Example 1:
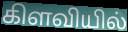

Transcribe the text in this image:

கிளவியில்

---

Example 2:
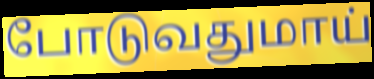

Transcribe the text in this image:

போடுவதுமாய்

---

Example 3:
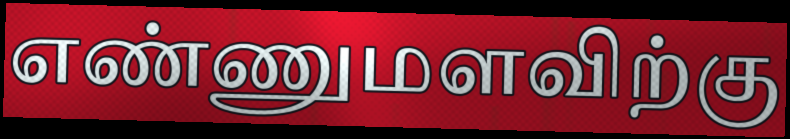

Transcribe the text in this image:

எண்ணுமளவிற்கு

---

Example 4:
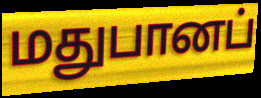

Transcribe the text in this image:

மதுபானப்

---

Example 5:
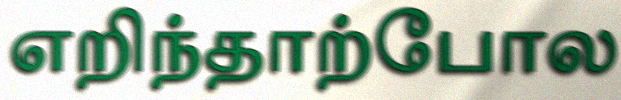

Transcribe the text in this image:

எறிந்தாற்போல